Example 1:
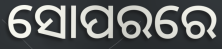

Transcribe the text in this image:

ସୋପରରେ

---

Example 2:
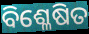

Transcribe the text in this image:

ବିଶ୍ଳେଷିତ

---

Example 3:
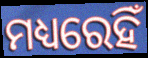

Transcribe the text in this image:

ମଧ୍ୟରେହିଁ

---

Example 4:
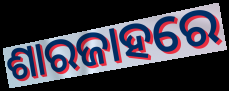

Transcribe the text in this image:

ଶାରଜାହରେ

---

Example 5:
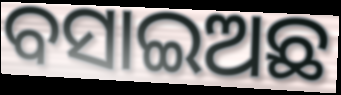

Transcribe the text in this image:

ବସାଇଅଛ